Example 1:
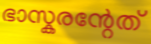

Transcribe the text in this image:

ഭാസ്കരന്റേത്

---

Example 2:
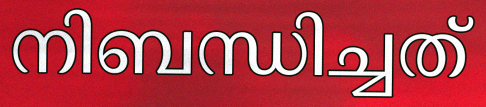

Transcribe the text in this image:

നിബന്ധിച്ചത്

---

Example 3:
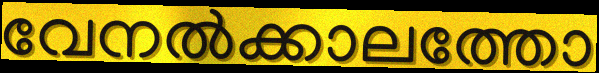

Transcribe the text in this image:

വേനൽക്കാലത്തോ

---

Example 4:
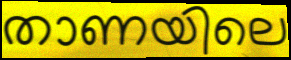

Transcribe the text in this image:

താണയിലെ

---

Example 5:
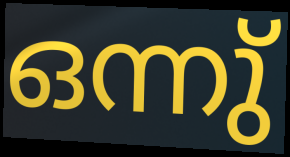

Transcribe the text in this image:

ഒന്നു്